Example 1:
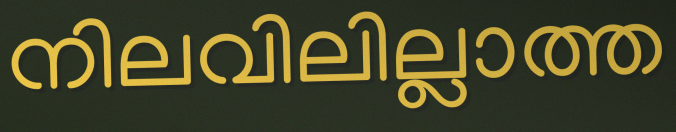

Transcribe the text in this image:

നിലവിലില്ലാത്ത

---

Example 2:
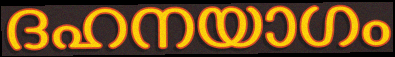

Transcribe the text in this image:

ദഹനയാഗം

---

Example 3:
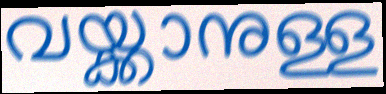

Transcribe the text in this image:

വയ്ക്കാനുള്ള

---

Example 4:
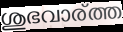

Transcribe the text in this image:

ശുഭവാര്ത്ത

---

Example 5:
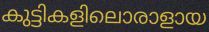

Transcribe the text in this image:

കുട്ടികളിലൊരാളായ